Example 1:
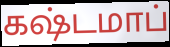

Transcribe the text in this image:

கஷ்டமாப்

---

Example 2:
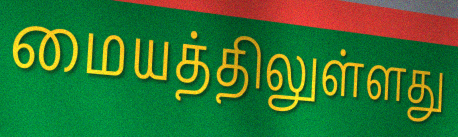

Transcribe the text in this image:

மையத்திலுள்ளது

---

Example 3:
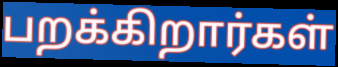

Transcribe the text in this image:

பறக்கிறார்கள்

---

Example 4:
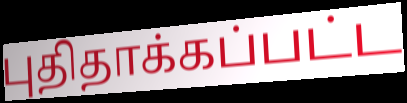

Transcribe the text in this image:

புதிதாக்கப்பட்ட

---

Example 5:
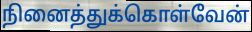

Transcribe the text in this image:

நினைத்துக்கொள்வேன்